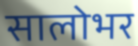
सालोभर